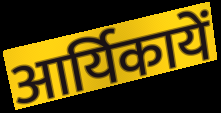
आर्यिकायें